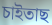
চাইতাছ